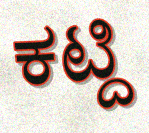
ಕಟ್ದಿ